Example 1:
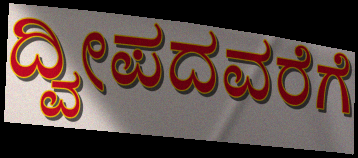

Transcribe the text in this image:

ದ್ವೀಪದವರೆಗೆ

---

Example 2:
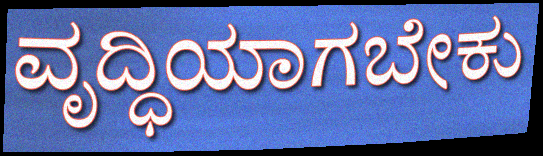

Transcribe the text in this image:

ವೃದ್ಧಿಯಾಗಬೇಕು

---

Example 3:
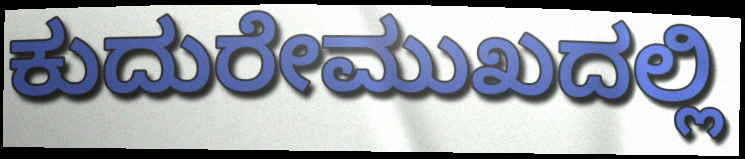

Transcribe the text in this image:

ಕುದುರೇಮುಖದಲ್ಲಿ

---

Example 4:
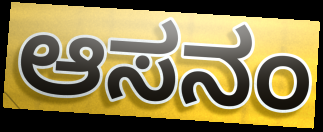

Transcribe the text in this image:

ಆಸನಂ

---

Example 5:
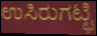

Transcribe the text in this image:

ಉಸಿರುಗಟ್ಟಿ